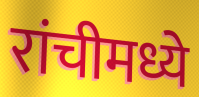
रांचीमध्ये